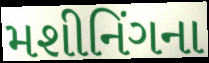
મશીનિંગના